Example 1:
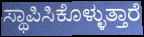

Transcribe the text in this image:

ಸ್ಥಾಪಿಸಿಕೊಳ್ಳುತ್ತಾರೆ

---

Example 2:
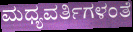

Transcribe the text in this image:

ಮಧ್ಯವರ್ತಿಗಳಂತೆ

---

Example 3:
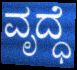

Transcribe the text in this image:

ವೃದ್ಧೆ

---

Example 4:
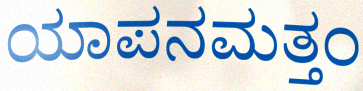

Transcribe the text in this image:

ಯಾಪನಮತ್ತಂ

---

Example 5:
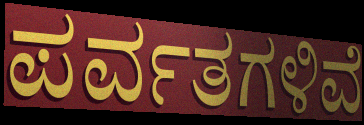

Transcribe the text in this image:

ಪರ್ವತಗಳಿವೆ